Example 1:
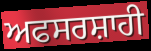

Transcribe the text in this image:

ਅਫਸਰਸ਼ਾਹੀ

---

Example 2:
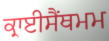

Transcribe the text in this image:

ਕ੍ਰਾਈਸੈਂਥਮਮ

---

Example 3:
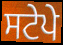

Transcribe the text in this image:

ਸਟੇਪੇ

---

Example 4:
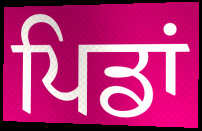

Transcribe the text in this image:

ਪਿਡਾਂ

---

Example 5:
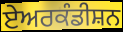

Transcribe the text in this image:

ਏਅਰਕੰਡੀਸ਼ਨ